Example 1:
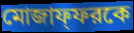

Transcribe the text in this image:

মোজাফ্ফরকে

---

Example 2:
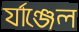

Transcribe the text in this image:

র্যাঞ্জেল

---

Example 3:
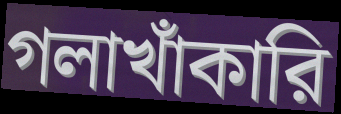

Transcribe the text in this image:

গলাখাঁকারি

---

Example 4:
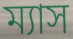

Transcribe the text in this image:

ম্যাস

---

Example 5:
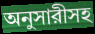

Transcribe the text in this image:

অনুসারীসহ